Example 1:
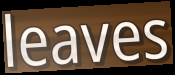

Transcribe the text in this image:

leaves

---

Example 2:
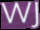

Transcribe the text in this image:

WJ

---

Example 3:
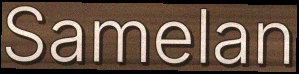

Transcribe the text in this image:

Samelan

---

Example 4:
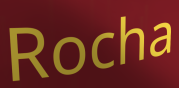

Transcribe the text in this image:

Rocha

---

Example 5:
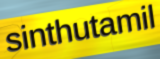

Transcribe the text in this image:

sinthutamil